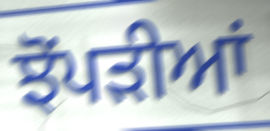
ਝੋਂਪੜੀਆਂ